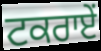
ਟਕਰਾਏਂ